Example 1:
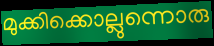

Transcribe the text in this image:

മുക്കിക്കൊല്ലുന്നൊരു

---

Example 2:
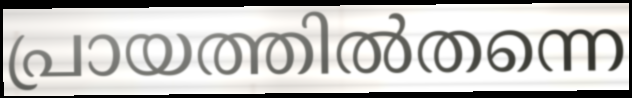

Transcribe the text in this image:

പ്രായത്തിൽതന്നെ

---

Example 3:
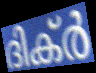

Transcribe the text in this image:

ദിക്ർ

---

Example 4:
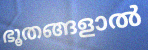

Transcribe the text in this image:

ഭൂതങ്ങളാൽ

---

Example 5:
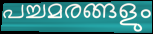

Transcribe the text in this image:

പച്ചമരങ്ങളും